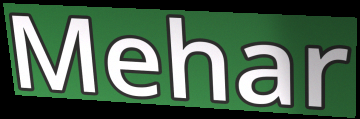
Mehar